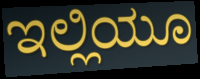
ಇಲ್ಲಿಯೂ